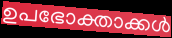
ഉപഭോക്താക്കൾ